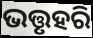
ଭତ୍ତୃହରି